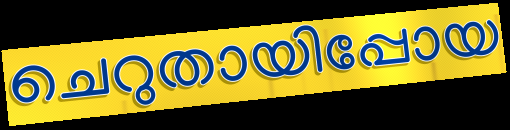
ചെറുതായിപ്പോയ